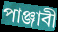
পাঞ্জাবী